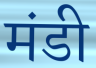
मंडी